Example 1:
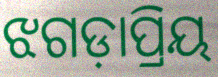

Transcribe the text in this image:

ଝଗଡ଼ାପ୍ରିୟ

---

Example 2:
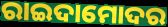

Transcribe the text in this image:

ରାଇଦାମୋଦର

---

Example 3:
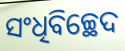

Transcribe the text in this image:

ସଂଧିବିଚ୍ଛେଦ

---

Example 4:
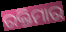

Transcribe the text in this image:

ରକ୍ତିମାର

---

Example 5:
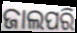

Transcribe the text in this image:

ଜାଲପରି